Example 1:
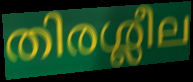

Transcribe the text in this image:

തിരശ്ലീല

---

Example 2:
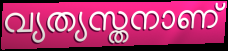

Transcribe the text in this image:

വ്യത്യസ്തനാണ്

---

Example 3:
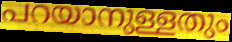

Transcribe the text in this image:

പറയാനുള്ളതും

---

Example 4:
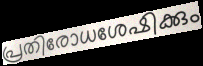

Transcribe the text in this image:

പ്രതിരോധശേഷിക്കും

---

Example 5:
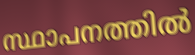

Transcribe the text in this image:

സ്ഥാപനത്തിൽ